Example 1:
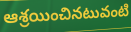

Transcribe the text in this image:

ఆశ్రయించినటువంటి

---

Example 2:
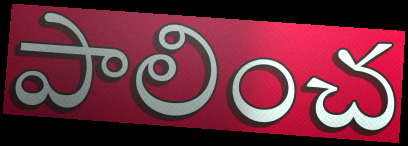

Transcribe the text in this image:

పాలించ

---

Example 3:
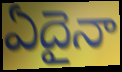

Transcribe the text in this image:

ఏదైనా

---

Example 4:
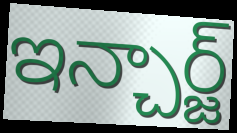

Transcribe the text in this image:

ఇన్చార్జ్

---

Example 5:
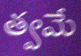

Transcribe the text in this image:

త్వమే